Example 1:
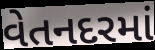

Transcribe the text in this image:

વેતનદરમાં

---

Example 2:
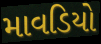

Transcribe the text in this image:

માવડિયો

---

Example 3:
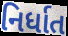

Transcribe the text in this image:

નિર્ધાત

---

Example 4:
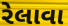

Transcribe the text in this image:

રેલાવા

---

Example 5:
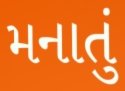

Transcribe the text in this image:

મનાતું